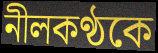
নীলকণ্ঠকে